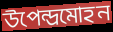
উপেন্দ্রমোহন